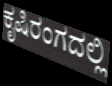
ಕೃಷಿರಂಗದಲ್ಲಿ